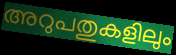
അറുപതുകളിലും